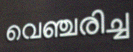
വെഞ്ചരിച്ച